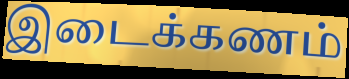
இடைக்கணம்